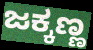
ಜಕ್ಕಣ್ಣ